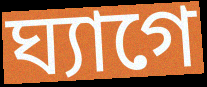
ঘ্যাগে